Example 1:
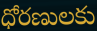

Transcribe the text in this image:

ధోరణులకు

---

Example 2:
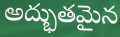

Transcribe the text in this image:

అద్భుతమైన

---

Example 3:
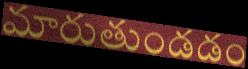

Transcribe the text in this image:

మారుతుండడం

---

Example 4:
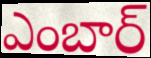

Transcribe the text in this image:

ఎంబార్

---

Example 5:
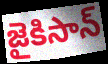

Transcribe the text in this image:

జైకిసాన్